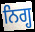
ਨਿਗ੍ਹ